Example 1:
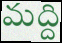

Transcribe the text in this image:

మద్ది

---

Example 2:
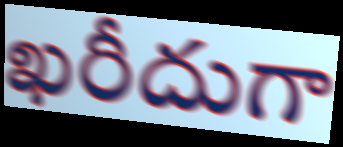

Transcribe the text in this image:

ఖరీదుగా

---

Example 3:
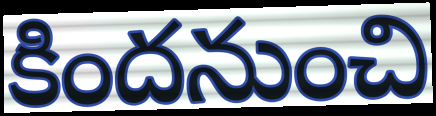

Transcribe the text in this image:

కిందనుంచి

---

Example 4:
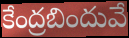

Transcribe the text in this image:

కేంద్రబిందువే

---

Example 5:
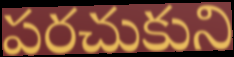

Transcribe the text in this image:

పరచుకుని